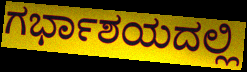
ಗರ್ಭಾಶಯದಲ್ಲಿ